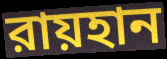
রায়হান